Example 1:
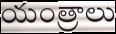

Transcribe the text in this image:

యంత్రాలు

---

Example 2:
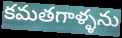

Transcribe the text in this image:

కమతగాళ్ళను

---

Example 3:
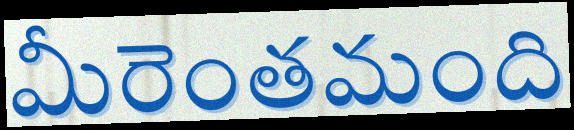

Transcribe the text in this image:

మీరెంతమంది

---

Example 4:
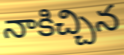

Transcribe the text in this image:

నాకిచ్చిన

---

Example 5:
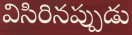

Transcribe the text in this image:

విసిరినప్పుడు